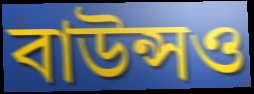
বাউন্সও